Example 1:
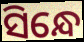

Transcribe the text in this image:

ସିନ୍ଧେ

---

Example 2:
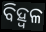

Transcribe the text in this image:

ବିହ୍ଵଳ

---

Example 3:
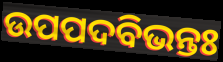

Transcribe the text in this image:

ଉପପଦବିଭନ୍ତଃ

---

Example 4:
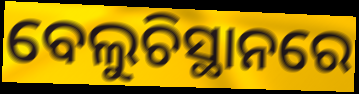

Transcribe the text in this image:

ବେଲୁଚିସ୍ଥାନରେ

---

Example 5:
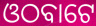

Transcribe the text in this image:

ଓଠବାଟେ